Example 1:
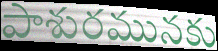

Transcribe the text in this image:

పాశురమునకు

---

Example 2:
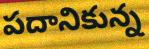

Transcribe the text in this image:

పదానికున్న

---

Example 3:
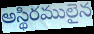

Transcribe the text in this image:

అస్థిరములైన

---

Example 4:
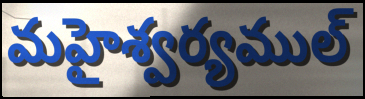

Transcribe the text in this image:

మహైశ్వర్యముల్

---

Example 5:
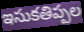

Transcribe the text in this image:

ఇసుకతిప్పల